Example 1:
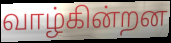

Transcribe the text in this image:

வாழ்கின்றன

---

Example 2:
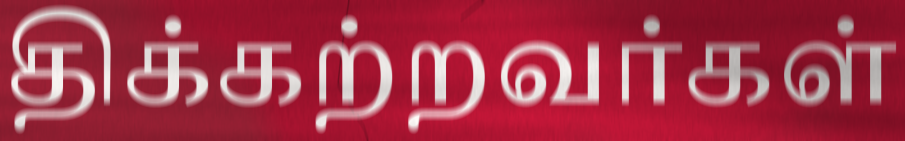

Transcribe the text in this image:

திக்கற்றவர்கள்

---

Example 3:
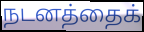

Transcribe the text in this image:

நடனத்தைக்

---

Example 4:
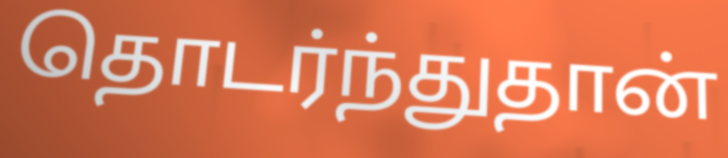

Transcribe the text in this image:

தொடர்ந்துதான்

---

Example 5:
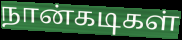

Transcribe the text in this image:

நான்கடிகள்